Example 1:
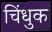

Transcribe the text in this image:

चिंधुक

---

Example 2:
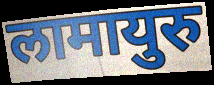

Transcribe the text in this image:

लामायुरु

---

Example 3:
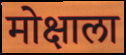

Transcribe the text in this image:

मोक्षाला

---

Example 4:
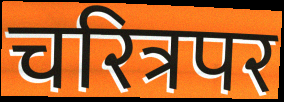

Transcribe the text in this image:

चरित्रपर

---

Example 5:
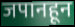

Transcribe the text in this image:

जपानहून